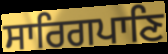
ਸਾਰਿਗਪਾਣਿ